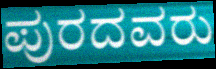
ಪುರದವರು